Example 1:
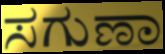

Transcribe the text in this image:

ಸಗುಣಾ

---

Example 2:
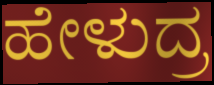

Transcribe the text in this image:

ಹೇಳುದ್ರ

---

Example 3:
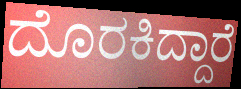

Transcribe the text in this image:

ದೊರಕಿದ್ದಾರೆ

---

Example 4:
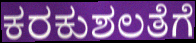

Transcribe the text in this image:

ಕರಕುಶಲತೆಗೆ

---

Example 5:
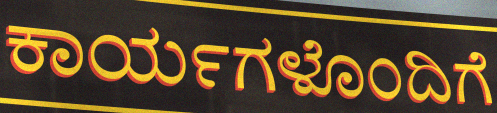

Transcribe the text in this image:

ಕಾರ್ಯಗಳೊಂದಿಗೆ